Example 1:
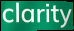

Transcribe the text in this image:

clarity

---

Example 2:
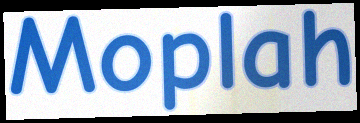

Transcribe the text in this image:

Moplah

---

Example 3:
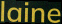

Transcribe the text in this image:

laine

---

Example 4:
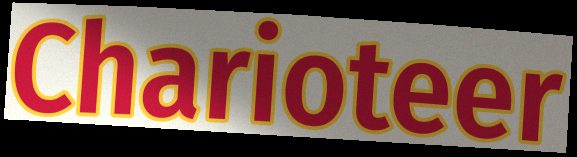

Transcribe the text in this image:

Charioteer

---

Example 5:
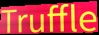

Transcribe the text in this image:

Truffle